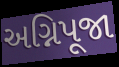
અગ્નિપૂજા